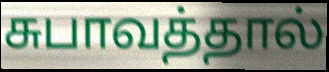
சுபாவத்தால்